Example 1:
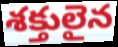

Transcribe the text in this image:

శక్తులైన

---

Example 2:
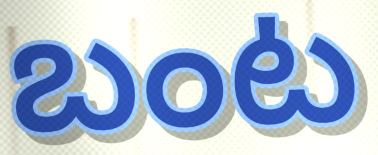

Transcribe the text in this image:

బంట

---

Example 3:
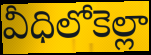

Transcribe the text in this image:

వీధిలోకెల్లా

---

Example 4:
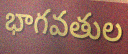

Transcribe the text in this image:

భాగవతుల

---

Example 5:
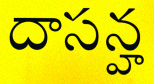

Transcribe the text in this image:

దాసన్హ